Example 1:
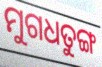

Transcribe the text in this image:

ମୁଗଧତୁଙ୍ଗ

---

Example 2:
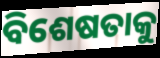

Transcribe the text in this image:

ବିଶେଷତାକୁ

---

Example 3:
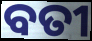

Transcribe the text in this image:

ବତୀ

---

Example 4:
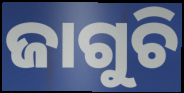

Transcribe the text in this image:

ଜାଗୁଚି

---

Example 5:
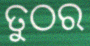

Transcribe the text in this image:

ତୁଠର